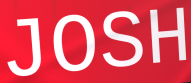
JOSH